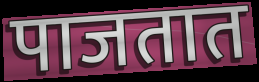
पाजतात